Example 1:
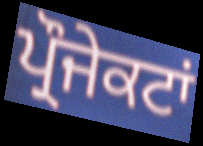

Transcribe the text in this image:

ਪ੍ਰੌਜੇਕਟਾਂ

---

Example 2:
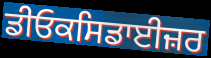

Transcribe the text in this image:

ਡੀਓਕਸਿਡਾਈਜ਼ਰ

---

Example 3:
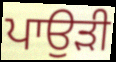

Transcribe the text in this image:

ਪਾਉੜੀ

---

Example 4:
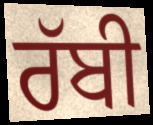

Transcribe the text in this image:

ਰੱਬੀ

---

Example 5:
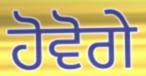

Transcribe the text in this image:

ਹੋਵੋਗੇ